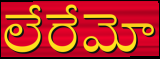
లేరేమో